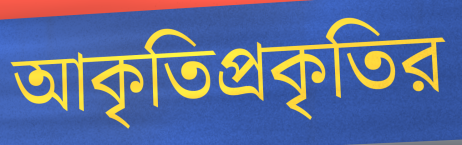
আকৃতিপ্রকৃতির